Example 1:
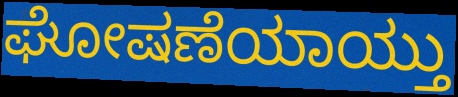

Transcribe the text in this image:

ಘೋಷಣೆಯಾಯ್ತು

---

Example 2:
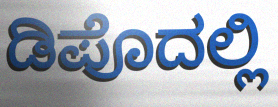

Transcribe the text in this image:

ಡಿಪೊದಲ್ಲಿ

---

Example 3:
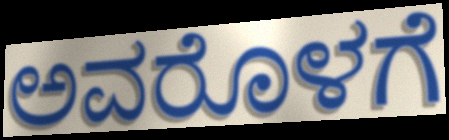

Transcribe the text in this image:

ಅವರೊಳಗೆ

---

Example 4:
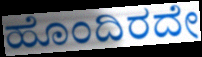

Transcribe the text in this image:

ಹೊಂದಿರದೇ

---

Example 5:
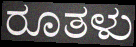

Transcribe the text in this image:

ರೂತಳು